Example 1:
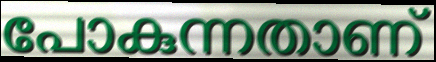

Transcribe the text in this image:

പോകുന്നതാണ്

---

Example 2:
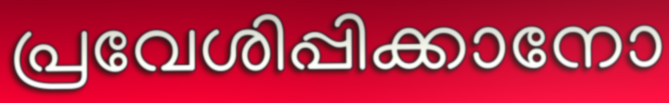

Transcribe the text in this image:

പ്രവേശിപ്പിക്കാനോ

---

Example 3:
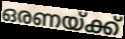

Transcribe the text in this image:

ഒരണയ്ക്ക്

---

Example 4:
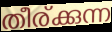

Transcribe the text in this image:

തീര്ക്കുന്ന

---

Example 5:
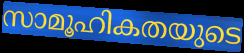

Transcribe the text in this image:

സാമൂഹികതയുടെ